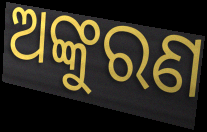
ଅଙ୍କୁରଣ